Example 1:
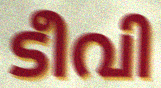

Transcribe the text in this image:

ടീവി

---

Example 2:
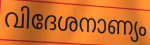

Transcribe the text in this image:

വിദേശനാണ്യം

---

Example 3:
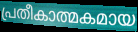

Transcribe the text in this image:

പ്രതീകാത്മകമായ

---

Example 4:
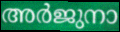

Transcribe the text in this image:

അർജുനാ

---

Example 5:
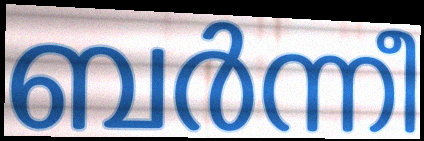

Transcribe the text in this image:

ബർന്നീ